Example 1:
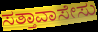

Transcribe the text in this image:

ಸತ್ತಾವಾಸೇಸು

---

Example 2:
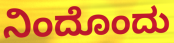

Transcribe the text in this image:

ನಿಂದೊಂದು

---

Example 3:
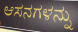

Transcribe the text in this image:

ಆಸನಗಳನ್ನು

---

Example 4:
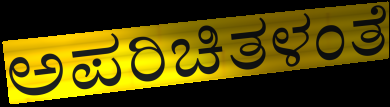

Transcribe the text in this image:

ಅಪರಿಚಿತಳಂತೆ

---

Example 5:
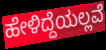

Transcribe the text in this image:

ಹೇಳಿದ್ದೆಯಲ್ಲವೆ